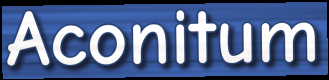
Aconitum